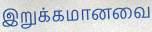
இறுக்கமானவை